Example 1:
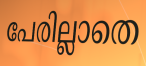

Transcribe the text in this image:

പേരില്ലാതെ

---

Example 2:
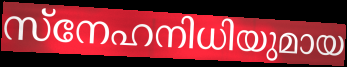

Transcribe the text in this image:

സ്നേഹനിധിയുമായ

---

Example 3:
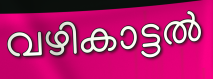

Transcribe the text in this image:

വഴികാട്ടൽ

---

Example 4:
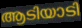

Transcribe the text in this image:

ആടിയാടി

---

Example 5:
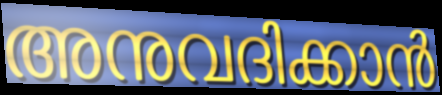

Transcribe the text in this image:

അനുവദിക്കാൻ